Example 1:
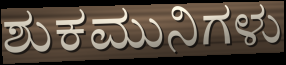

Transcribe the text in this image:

ಶುಕಮುನಿಗಳು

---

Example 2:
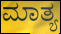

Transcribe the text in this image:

ಮಾತ್ಯ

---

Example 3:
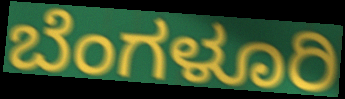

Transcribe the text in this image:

ಬೆಂಗಳೂರಿ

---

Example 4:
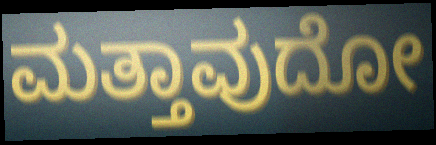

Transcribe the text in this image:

ಮತ್ತಾವುದೋ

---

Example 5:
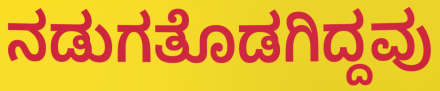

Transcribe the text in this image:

ನಡುಗತೊಡಗಿದ್ದವು